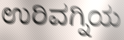
ಉರಿವಗ್ನಿಯ